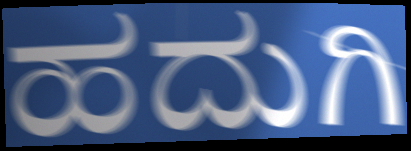
ಹದುಗಿ